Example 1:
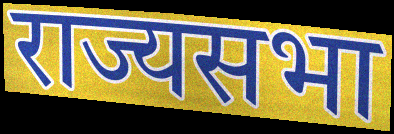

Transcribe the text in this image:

राज्‍यसभा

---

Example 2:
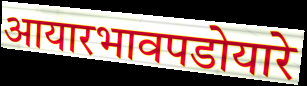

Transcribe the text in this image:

आयारभावपडोयारे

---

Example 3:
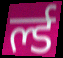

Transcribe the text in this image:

र्ल्ड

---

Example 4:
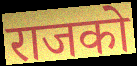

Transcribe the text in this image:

राजको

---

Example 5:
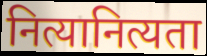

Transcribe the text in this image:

नित्यानित्यता